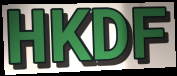
HKDF